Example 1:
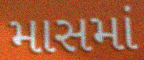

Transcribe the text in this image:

માસમાં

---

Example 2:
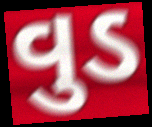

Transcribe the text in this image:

વુડ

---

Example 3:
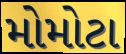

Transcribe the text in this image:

મોમોટા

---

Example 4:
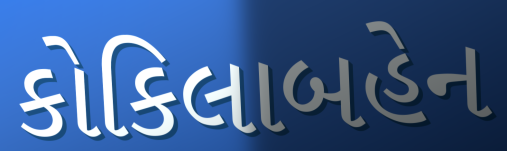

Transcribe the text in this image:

કોકિલાબહેન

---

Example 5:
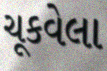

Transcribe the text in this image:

ચૂકવેલા